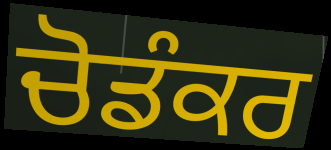
ਚੋਡੰਕਰ